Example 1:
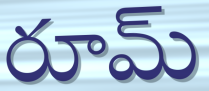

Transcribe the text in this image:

రూమ్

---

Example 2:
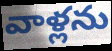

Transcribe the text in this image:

వాళ్లను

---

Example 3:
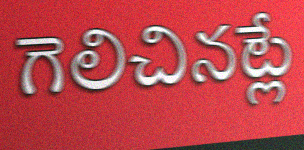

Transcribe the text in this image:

గెలిచినట్లే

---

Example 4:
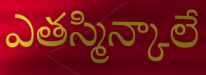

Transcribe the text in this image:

ఎతస్మిన్కాలే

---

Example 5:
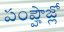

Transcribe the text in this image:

పంప్హౌజ్లో